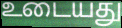
உடையது